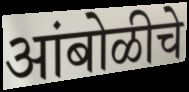
आंबोळीचे